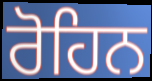
ਰੋਹਿਨ